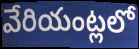
వేరియంట్లలో